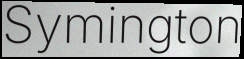
Symington